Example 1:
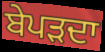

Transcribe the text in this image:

ਬੇਪੜਦਾ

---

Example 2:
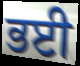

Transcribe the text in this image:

ਭਈ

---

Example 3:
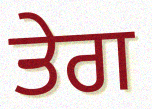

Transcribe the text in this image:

ਤੇਗ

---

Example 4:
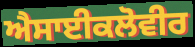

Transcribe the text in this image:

ਐਸਾਈਕਲੋਵੀਰ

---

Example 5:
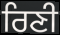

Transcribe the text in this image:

ਰਿਣੀ